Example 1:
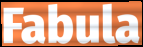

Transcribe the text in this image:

Fabula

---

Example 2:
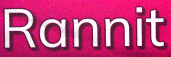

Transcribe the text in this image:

Rannit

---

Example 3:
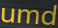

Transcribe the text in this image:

umd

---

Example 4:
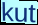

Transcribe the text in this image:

kut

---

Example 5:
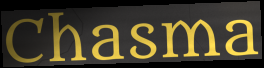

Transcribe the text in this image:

Chasma